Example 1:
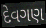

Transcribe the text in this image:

દેવગણ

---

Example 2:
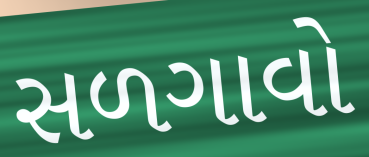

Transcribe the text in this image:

સળગાવો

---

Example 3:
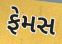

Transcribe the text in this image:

ફેમસ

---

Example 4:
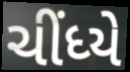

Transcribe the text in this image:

ચીંધ્યે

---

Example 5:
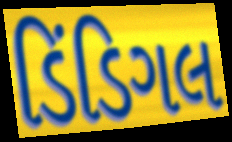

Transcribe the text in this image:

ડિંડિગલ